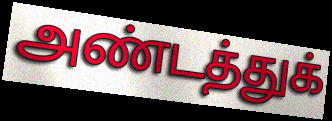
அண்டத்துக்